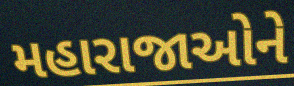
મહારાજાઓને